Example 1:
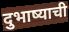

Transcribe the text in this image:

दुभाष्याची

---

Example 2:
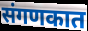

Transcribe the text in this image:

संगणकात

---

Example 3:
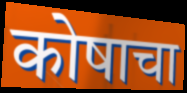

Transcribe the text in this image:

कोषाचा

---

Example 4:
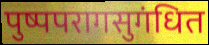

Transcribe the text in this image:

पुष्पपरागसुगंधित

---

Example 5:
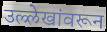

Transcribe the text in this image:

उल्लेखांवरून